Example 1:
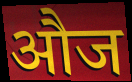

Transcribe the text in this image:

औज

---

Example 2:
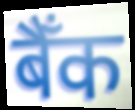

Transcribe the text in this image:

बैँक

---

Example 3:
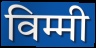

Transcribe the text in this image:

विम्मी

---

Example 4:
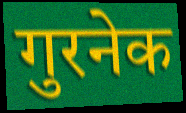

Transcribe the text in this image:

गुरनेक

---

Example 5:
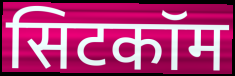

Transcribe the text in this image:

सिटकॉम